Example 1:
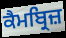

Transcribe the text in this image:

ਕੈਮਬ੍ਰਿਜ਼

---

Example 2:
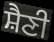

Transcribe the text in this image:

ਸ਼ੈਣੀ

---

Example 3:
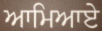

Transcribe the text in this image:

ਆਮਿਆਏ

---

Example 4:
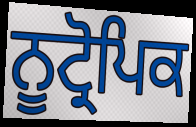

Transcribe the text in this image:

ਨੂਟ੍ਰੋਪਿਕ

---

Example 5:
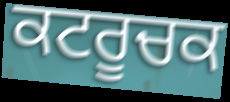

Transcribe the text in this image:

ਕਟਰੂਚਕ